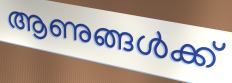
ആണുങ്ങൾക്ക്